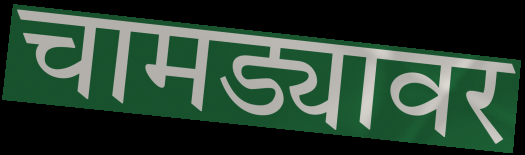
चामड्यावर